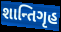
શાન્તિગૃહ